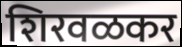
शिरवळकर